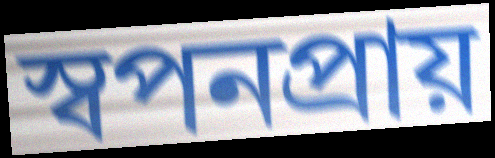
স্বপনপ্রায়